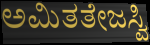
ಅಮಿತತೇಜಸ್ವಿ